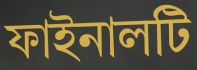
ফাইনালটি